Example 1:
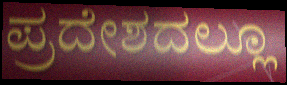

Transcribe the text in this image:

ಪ್ರದೇಶದಲ್ಲೂ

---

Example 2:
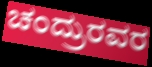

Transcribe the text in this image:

ಚಂದ್ರುರವರ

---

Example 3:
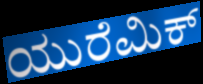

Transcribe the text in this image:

ಯುರೆಮಿಕ್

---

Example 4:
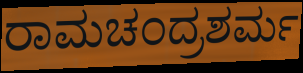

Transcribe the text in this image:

ರಾಮಚಂದ್ರಶರ್ಮ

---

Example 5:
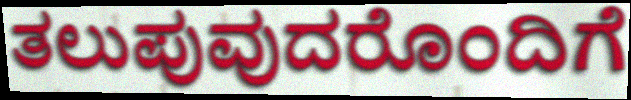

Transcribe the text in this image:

ತಲುಪುವುದರೊಂದಿಗೆ